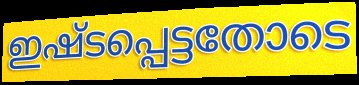
ഇഷ്ടപ്പെട്ടതോടെ